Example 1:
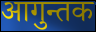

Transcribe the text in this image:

आगुन्तक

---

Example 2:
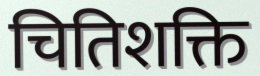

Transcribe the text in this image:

चितिशक्ति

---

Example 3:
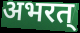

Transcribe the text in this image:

अभरत्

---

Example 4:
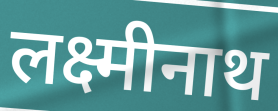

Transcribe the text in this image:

लक्ष्मीनाथ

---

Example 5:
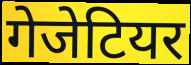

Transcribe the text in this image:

गेजेटियर